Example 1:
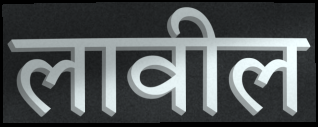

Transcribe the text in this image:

लावील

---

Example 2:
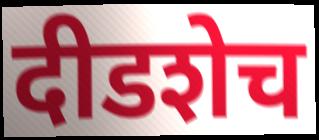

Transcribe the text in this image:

दीडशेच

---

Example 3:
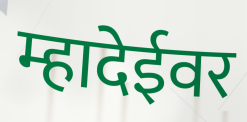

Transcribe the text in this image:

म्हादेईवर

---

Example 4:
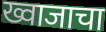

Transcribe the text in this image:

ख्वाजाचा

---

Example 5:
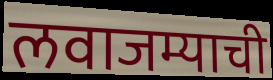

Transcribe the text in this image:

लवाजम्याची